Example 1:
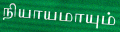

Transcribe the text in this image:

நியாயமாயும்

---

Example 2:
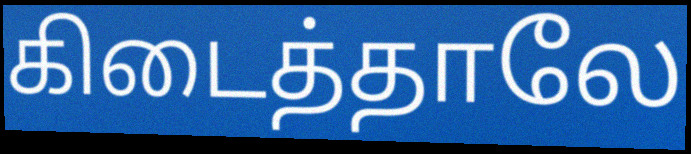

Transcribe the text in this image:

கிடைத்தாலே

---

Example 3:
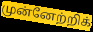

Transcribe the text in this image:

முன்னேற்றிக்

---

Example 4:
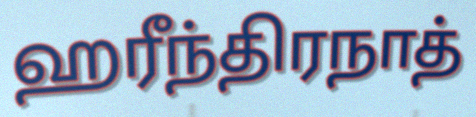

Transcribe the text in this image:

ஹரீந்திரநாத்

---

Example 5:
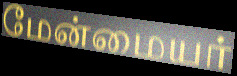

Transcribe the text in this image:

மேன்மையர்